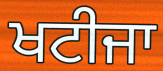
ਖਟੀਜਾ